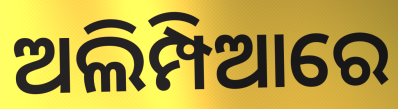
ଅଲିମ୍ପିଆରେ